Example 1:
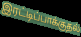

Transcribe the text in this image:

இரட்டிப்பாக்குதல்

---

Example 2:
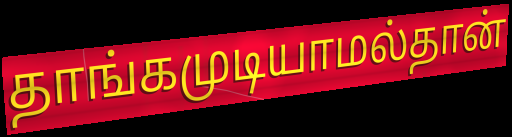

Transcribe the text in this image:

தாங்கமுடியாமல்தான்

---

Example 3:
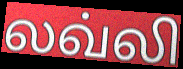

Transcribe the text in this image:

லவ்லி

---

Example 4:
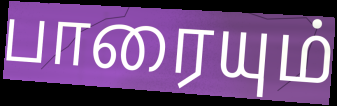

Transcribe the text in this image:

பாரையும்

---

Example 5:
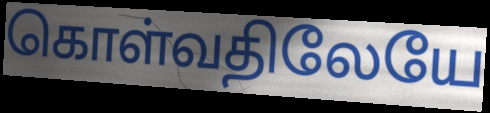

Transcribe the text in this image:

கொள்வதிலேயே